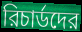
রিচার্ডদের